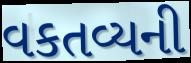
વકતવ્યની